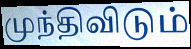
முந்திவிடும்